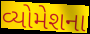
વ્યોમેશના